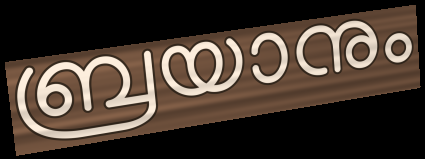
ബ്രയാനും